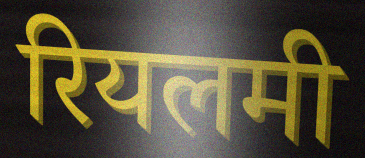
रियलमी